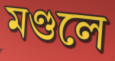
মণ্ডলে